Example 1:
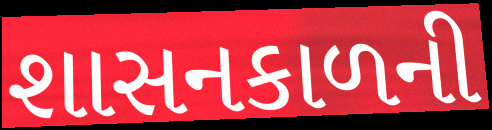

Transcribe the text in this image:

શાસનકાળની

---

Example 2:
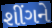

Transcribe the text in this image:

શીંગને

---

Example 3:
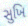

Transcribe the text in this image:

સુખિ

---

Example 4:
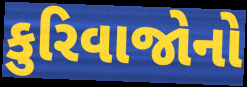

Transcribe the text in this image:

કુરિવાજોનો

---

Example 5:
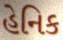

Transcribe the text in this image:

હેનિક